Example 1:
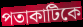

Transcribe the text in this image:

পতাকাটিকে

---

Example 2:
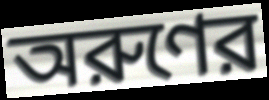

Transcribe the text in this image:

অরুণের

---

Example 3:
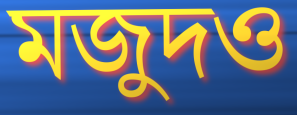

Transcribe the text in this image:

মজুদও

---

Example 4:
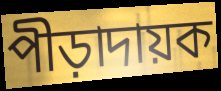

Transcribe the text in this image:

পীড়াদায়ক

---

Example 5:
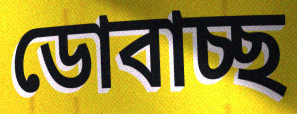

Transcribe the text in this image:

ডোবাচ্ছ